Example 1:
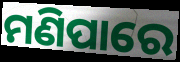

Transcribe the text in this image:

ମଣିପାରେ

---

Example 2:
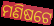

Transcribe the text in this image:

ମଣିଷଟେ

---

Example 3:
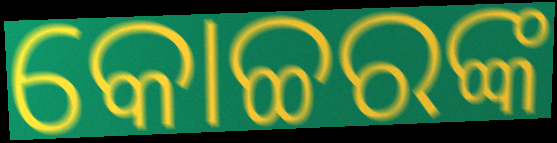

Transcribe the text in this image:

କୋଚ୍ଚରଙ୍କ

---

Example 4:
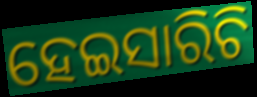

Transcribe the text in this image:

ହେଇସାରିଚି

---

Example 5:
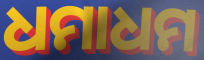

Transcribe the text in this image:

ଧମାଧମ